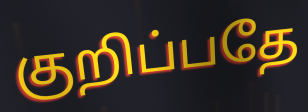
குறிப்பதே